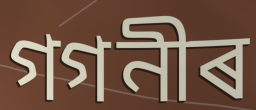
গগনীৰ